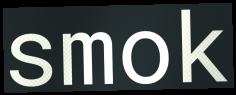
smok